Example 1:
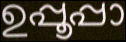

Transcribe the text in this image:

ഉപ്പൂപ്പാ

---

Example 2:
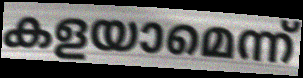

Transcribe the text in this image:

കളയാമെന്ന്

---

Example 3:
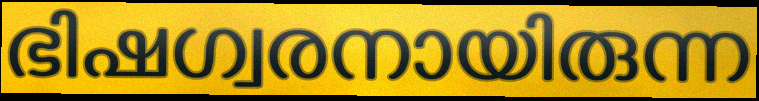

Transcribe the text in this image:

ഭിഷഗ്വരനായിരുന്ന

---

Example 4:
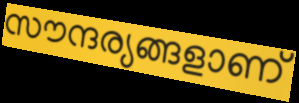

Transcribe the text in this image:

സൗന്ദര്യങ്ങളാണ്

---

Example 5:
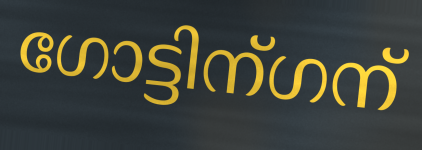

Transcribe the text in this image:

ഗോട്ടിന്ഗന്